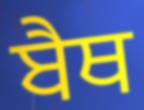
ਬੈਥ